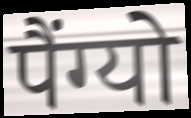
पैंग्यो